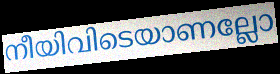
നീയിവിടെയാണല്ലോ